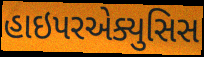
હાઇપરએક્યુસિસ